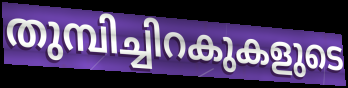
തുമ്പിച്ചിറകുകളുടെ